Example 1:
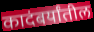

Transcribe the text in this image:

कादंबर्यांतील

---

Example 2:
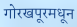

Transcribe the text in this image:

गोरखपूरमधून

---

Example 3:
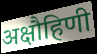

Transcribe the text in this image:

अक्षौहिणी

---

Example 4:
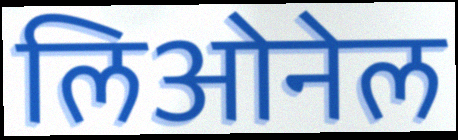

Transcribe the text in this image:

लिओनेल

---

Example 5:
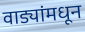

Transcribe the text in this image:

वाड्यांमधून